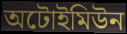
অটোইমিউন